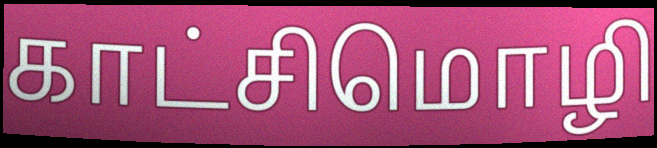
காட்சிமொழி